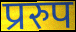
प्ररुप